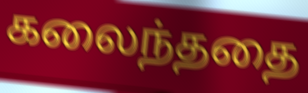
கலைந்ததை